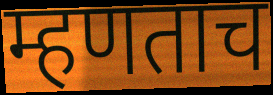
म्हणताच